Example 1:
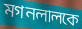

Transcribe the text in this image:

মগনলালকে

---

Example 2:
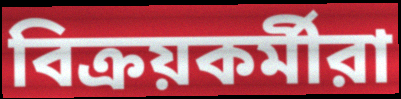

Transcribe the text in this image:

বিক্রয়কর্মীরা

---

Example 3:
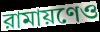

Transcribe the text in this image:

রামায়ণেও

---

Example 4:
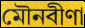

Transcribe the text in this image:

মৌনবীণা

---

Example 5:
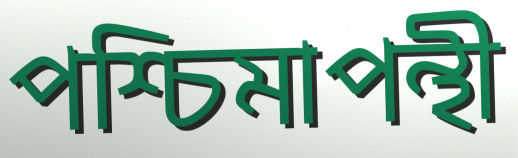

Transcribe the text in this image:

পশ্চিমাপন্থী